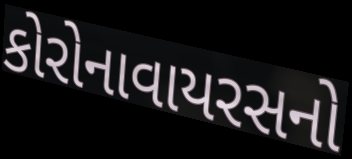
કોરોનાવાયરસનો